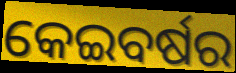
କେଇବର୍ଷର